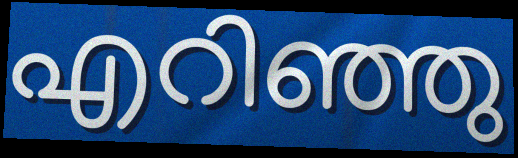
എറിഞ്ഞു